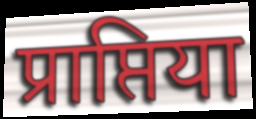
प्राप्तिया